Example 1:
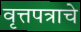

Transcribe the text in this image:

वृत्तपत्राचे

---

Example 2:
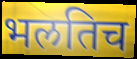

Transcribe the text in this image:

भलतिच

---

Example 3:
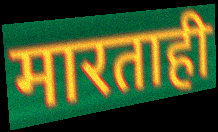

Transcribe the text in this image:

मारताही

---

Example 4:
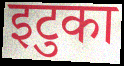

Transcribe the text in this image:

इटुका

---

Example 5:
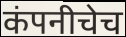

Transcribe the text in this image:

कंपनीचेच